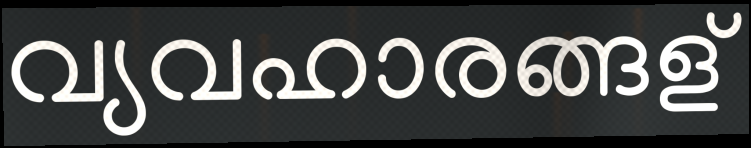
വ്യവഹാരങ്ങള്